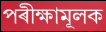
পৰীক্ষামূলক